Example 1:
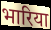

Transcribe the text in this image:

भारिया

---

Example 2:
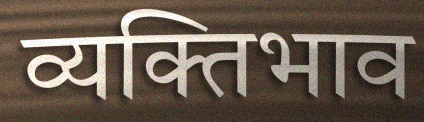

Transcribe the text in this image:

व्यक्तिभाव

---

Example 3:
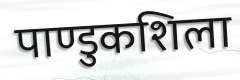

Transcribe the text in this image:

पाण्डुकशिला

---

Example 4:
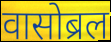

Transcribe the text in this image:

वासोब्रल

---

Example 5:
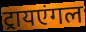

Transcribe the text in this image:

ट्रायएंगल